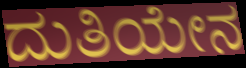
ದುತಿಯೇನ